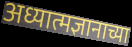
अध्यात्मज्ञानाच्या